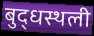
बुद्धस्थली